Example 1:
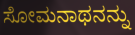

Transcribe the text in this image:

ಸೋಮನಾಥನನ್ನು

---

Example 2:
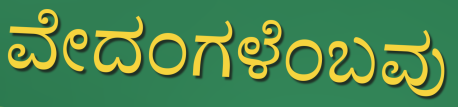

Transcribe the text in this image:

ವೇದಂಗಳೆಂಬವು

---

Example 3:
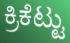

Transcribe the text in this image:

ಕ್ರಿಕೆಟ್ಟು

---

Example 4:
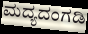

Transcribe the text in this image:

ಮದ್ಯದಂಗಡಿ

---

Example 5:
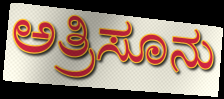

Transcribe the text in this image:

ಅತ್ರಿಸೂನು